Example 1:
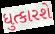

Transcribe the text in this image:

ધુત્કારશે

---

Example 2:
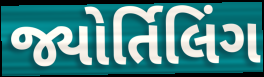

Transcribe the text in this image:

જ્યોર્તિલિંગ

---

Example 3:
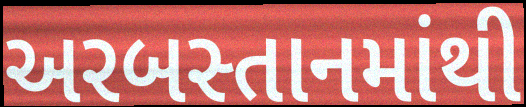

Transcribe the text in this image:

અરબસ્તાનમાંથી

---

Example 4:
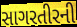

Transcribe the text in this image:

સાગરતીરની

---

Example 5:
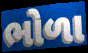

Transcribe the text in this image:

ભોળા